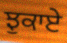
ਝੁਕਾਏ